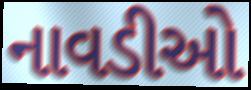
નાવડીઓ